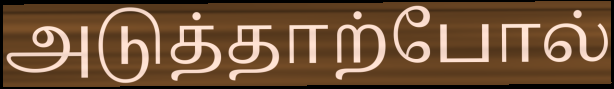
அடுத்தாற்போல்